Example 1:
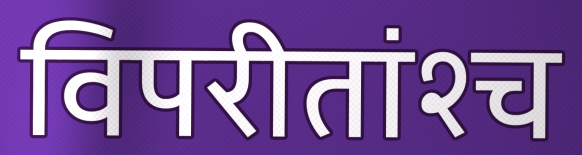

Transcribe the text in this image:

विपरीतांश्च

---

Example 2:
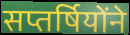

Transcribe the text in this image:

सप्तर्षियोंने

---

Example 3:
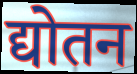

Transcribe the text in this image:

द्योतन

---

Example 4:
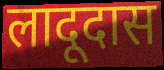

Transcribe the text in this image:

लादूदास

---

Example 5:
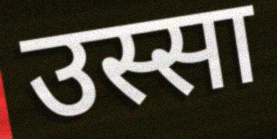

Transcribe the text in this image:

उस्सा